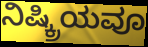
ನಿಷ್ಕ್ರಿಯವೂ